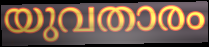
യുവതാരം